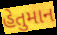
હેતુમાન